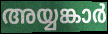
അയ്യങ്കാർ